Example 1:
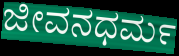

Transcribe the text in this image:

ಜೀವನಧರ್ಮ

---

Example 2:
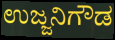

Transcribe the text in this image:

ಉಜ್ಜನಿಗೌಡ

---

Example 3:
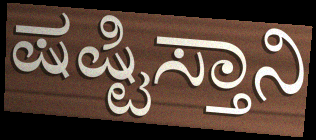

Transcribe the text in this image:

ಷಷ್ಟಿಸ್ತಾನಿ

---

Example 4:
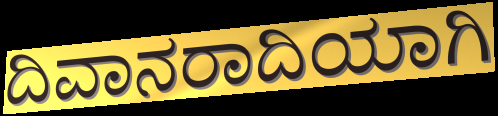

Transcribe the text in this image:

ದಿವಾನರಾದಿಯಾಗಿ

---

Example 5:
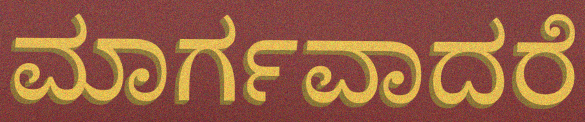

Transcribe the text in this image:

ಮಾರ್ಗವಾದರೆ